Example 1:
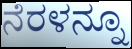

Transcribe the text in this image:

ನೆರಳನ್ನೂ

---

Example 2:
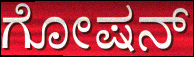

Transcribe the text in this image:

ಗೋಷನ್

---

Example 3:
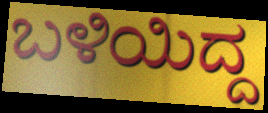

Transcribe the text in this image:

ಬಳಿಯಿದ್ದ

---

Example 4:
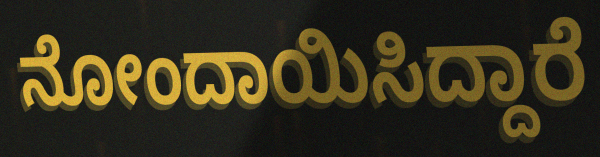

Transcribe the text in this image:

ನೋಂದಾಯಿಸಿದ್ದಾರೆ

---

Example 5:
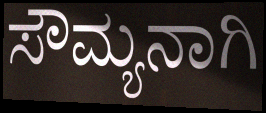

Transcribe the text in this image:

ಸೌಮ್ಯನಾಗಿ